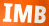
IMB